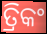
ତ୍ରିକଂ